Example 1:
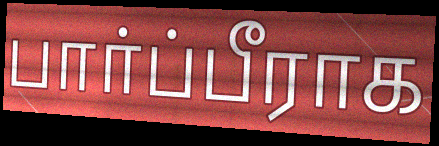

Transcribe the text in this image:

பார்ப்பீராக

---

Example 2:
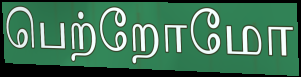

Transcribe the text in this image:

பெற்றோமோ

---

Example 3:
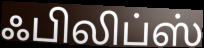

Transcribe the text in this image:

ஃபிலிப்ஸ்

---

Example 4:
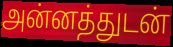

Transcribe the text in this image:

அன்னத்துடன்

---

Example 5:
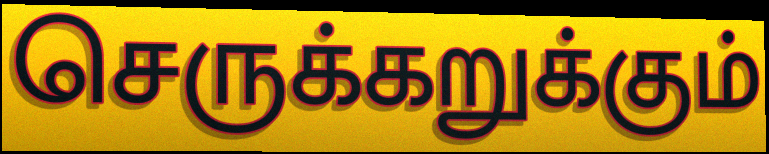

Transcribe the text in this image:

செருக்கறுக்கும்